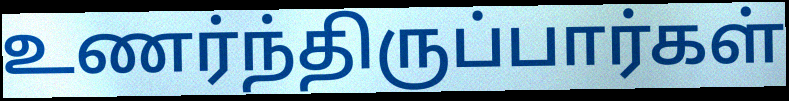
உணர்ந்திருப்பார்கள்